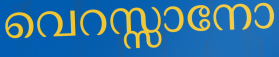
വെറസ്സാനോ